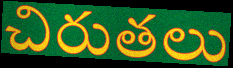
చిరుతలు